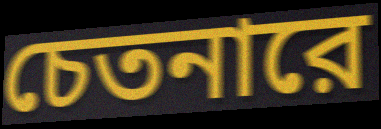
চেতনারে